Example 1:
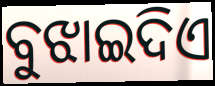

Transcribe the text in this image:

ବୁଝାଇଦିଏ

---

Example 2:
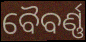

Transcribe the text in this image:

ବୈବର୍ଣ୍ଣ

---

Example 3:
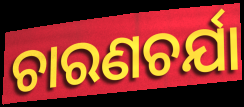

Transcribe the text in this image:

ଚାରଣଚର୍ଯା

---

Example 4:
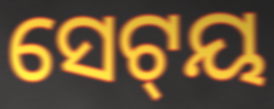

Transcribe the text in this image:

ସେଟ୍‌ୟ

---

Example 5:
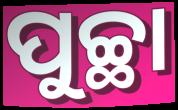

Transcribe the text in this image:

ପୁଚ୍ଛା